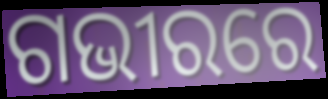
ଗଭୀରରେ